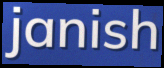
janish